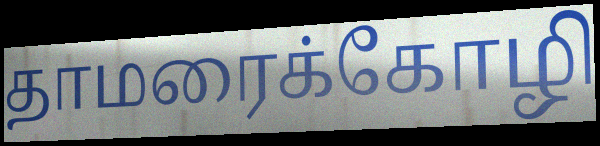
தாமரைக்கோழி